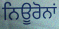
ਨਿਊਰੋਨਾਂ